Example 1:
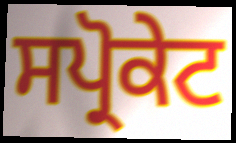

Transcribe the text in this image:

ਸਪ੍ਰੋਕੇਟ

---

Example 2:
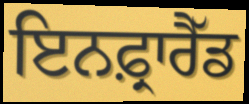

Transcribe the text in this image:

ਇਨਫ਼੍ਰਾਰੈੱਡ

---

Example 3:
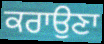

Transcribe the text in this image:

ਕਰਾਉਣਾ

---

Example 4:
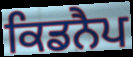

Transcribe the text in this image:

ਕਿਡਨੈਪ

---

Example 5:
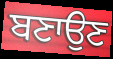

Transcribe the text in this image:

ਬਣਾਉਣ